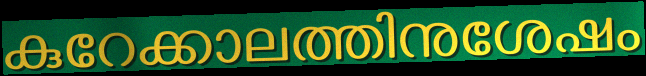
കുറേക്കാലത്തിനുശേഷം